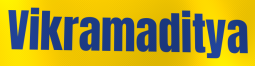
Vikramaditya